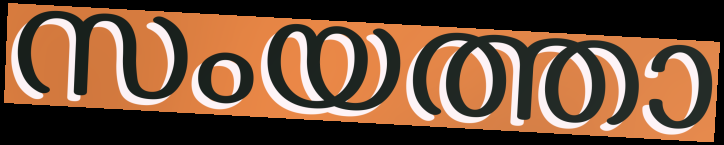
സംയത്താ